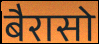
बैरासो